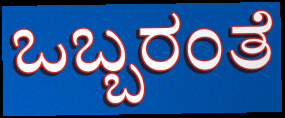
ಒಬ್ಬರಂತೆ